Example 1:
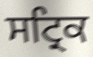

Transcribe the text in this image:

ਸਟ੍ਰਿਕ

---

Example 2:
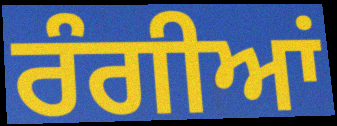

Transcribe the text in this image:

ਰੰਗੀਆਂ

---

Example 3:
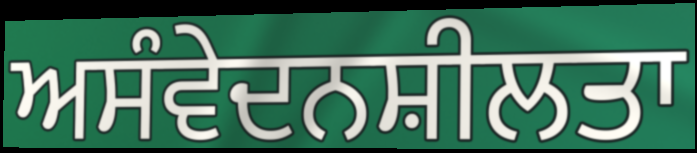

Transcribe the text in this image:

ਅਸੰਵੇਦਨਸ਼ੀਲਤਾ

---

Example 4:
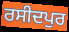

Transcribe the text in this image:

ਰਸੀਦਪੁਰ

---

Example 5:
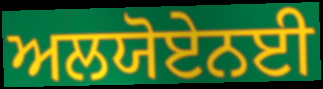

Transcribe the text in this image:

ਅਲਯੋਏਨਈ